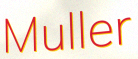
Muller